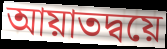
আয়াতদ্বয়ে